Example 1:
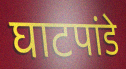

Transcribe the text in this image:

घाटपांडे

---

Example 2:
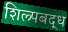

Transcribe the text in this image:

शिल्पबद्ध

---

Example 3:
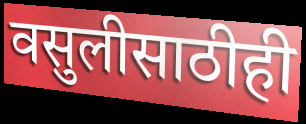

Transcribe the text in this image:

वसुलीसाठीही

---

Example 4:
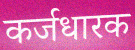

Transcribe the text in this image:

कर्जधारक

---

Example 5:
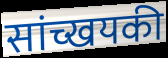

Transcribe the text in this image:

सांच्खयकी